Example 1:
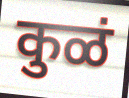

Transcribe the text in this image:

कुळं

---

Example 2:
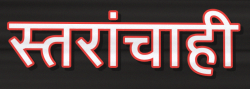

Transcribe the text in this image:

स्तरांचाही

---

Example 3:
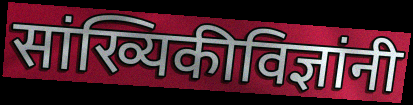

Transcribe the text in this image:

सांख्यिकीविज्ञांनी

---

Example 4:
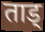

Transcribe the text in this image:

ताड्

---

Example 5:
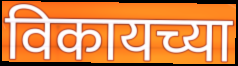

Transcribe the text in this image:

विकायच्या